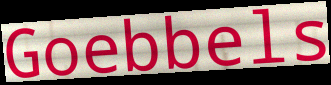
Goebbels